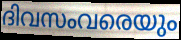
ദിവസംവരെയും